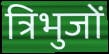
त्रिभुजों